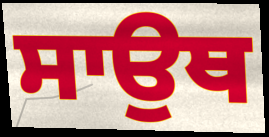
ਸਾਉਥ